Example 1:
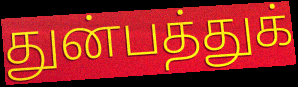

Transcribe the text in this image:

துன்பத்துக்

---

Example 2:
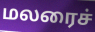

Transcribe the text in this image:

மலரைச்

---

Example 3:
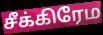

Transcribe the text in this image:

சீக்கிரேம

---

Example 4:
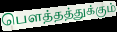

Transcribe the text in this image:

பௌத்தத்துக்கும்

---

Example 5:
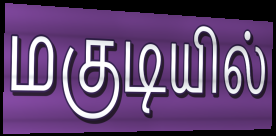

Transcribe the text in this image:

மகுடியில்